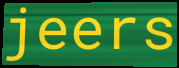
jeers